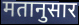
मतानुसार